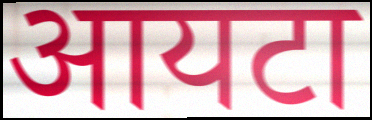
आयटा